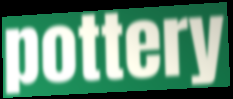
pottery